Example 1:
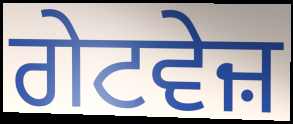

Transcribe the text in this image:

ਗੇਟਵੇਜ਼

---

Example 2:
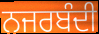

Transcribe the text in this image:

ਨਜਰਬੰਦੀ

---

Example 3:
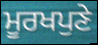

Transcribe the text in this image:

ਮੂਰਖਪੁਣੇ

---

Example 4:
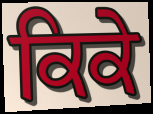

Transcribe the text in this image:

ਕਿਕੇ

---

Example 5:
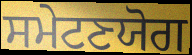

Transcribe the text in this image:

ਸਮੇਟਣਯੋਗ